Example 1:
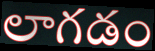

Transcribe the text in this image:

లాగడం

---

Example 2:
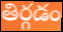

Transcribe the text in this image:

తిర్గడం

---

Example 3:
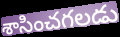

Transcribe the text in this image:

శాసించగలడు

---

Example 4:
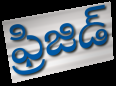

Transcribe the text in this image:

ఫ్రిజిడ్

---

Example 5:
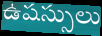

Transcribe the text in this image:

ఉషస్సులు